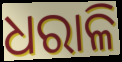
ଧରାଳି